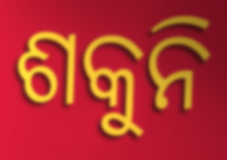
ଶକୁନି